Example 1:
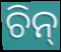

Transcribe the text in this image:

ଚିନ୍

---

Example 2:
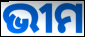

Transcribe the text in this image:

ଭୀମ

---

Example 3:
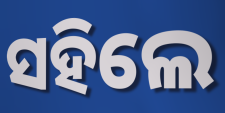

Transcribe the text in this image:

ସହିଲେ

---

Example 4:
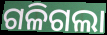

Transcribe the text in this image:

ଗଳିଗଲା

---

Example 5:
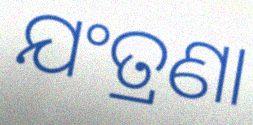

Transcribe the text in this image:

ଯଂତ୍ରଣା